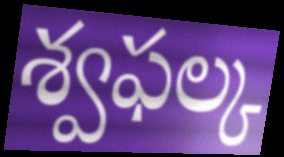
శ్వఫల్క